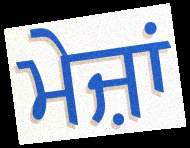
ਮੇਜ਼ਾਂ